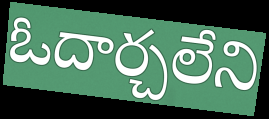
ఓదార్చలేని